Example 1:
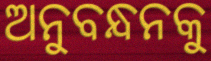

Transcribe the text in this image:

ଅନୁବନ୍ଧନକୁ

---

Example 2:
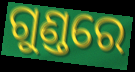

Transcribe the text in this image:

ଗୁଣ୍ଡରେ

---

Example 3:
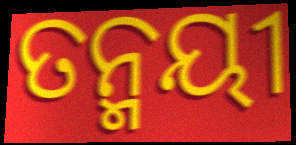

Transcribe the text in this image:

ତନ୍ମୟୀ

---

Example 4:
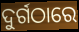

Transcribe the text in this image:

ଦୁର୍ଗଠାରେ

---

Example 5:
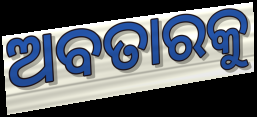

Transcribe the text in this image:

ଅବତାରକୁ